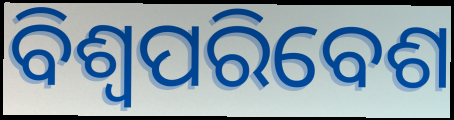
ବିଶ୍ୱପରିବେଶ